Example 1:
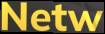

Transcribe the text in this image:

Netw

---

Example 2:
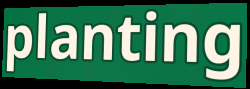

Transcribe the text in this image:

planting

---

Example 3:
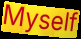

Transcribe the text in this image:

Myself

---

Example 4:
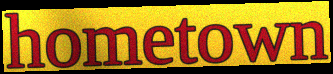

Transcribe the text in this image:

hometown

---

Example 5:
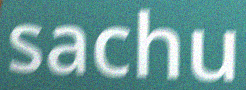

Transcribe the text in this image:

sachu